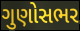
ગુણોસભર